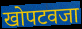
खोपटवजा